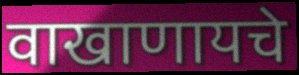
वाखाणायचे